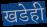
खडेही